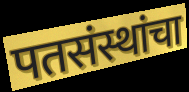
पतसंस्थांचा